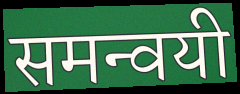
समन्वयी